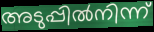
അടുപ്പിൽനിന്ന്